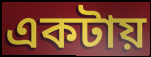
একটায়